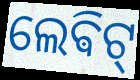
ଲେଵିଟ୍